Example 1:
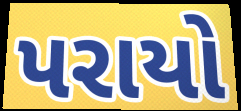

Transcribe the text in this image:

પરાયો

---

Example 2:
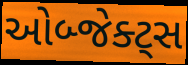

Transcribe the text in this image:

ઓબ્જેક્ટ્સ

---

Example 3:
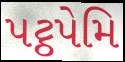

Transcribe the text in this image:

પટ્ઠપેમિ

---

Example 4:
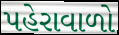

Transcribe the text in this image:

પહેરાવાળો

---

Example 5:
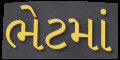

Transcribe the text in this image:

ભેટમાં